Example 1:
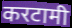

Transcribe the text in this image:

करटामी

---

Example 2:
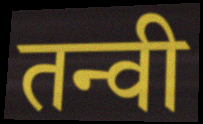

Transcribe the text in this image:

तन्वी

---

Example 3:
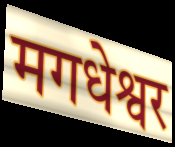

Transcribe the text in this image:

मगधेश्वर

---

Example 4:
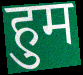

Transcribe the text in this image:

हुम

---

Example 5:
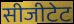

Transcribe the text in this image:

सीजीटेट